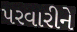
પરવારીને